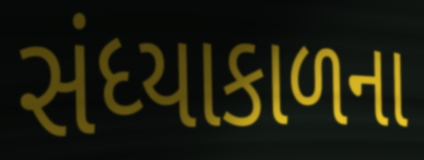
સંધ્યાકાળના